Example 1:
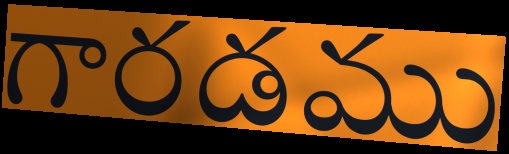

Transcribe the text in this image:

గారడము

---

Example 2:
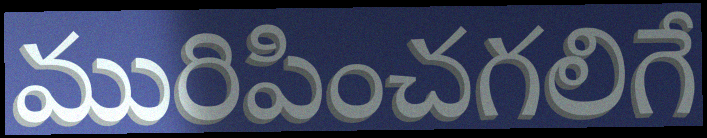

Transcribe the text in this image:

మురిపించగలిగే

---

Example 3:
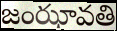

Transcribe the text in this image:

జంఝావతి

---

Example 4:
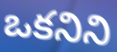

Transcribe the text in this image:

ఒకనిని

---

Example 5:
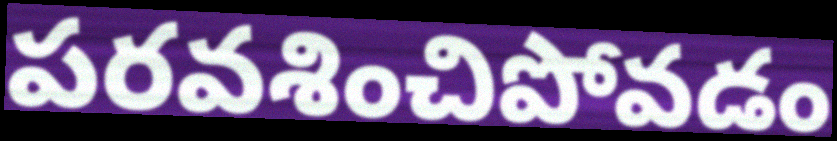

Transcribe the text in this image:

పరవశించిపోవడం